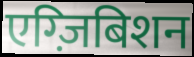
एग्ज़िबिशन